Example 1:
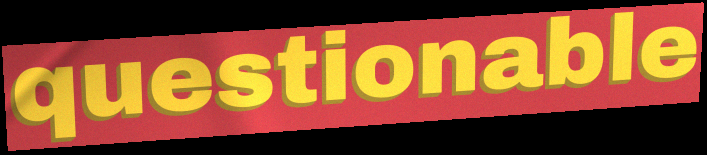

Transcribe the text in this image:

questionable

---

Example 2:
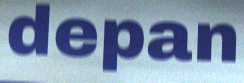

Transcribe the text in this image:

depan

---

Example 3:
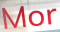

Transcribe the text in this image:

Mor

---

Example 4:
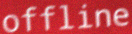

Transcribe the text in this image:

offline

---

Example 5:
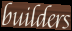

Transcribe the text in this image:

builders